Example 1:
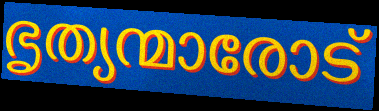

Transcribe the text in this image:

ഭൃത്യന്മാരോട്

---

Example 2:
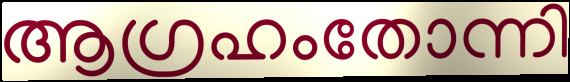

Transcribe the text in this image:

ആഗ്രഹംതോന്നി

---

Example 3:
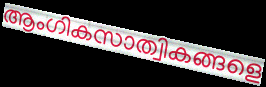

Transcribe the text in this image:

ആംഗികസാത്വികങ്ങളെ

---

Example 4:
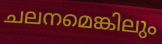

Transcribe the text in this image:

ചലനമെങ്കിലും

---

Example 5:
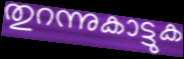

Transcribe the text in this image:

തുറന്നുകാട്ടുക